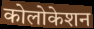
कोलोकेशन